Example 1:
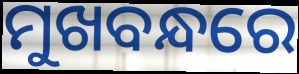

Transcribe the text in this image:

ମୁଖବନ୍ଧରେ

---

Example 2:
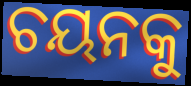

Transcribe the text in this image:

ଚୟନକୁ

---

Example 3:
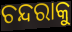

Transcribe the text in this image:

ଚନ୍ଦରାକୁ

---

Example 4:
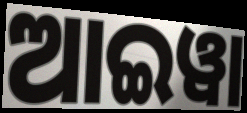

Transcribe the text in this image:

ଆଇୱା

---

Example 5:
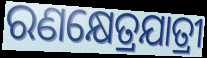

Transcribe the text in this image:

ରଣକ୍ଷେତ୍ରଯାତ୍ରୀ